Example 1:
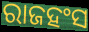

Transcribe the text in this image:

ରାଜହଂସ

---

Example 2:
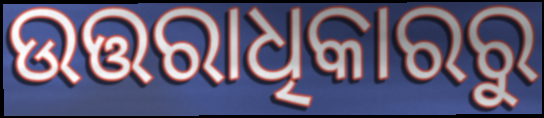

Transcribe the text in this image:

ଉତ୍ତରାଧିକାରରୁ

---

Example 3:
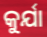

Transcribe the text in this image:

କୁର୍ଯା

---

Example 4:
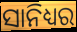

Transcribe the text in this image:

ସାନିଧ୍ୟର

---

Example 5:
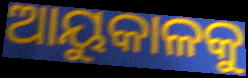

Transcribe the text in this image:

ଆୟୁକାଳକୁ